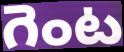
గెంట